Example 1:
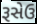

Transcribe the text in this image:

રૂસેઉ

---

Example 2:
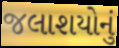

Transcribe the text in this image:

જલાશયોનું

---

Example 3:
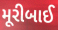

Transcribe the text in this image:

મૂરીબાઈ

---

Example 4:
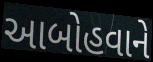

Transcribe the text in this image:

આબોહવાને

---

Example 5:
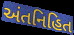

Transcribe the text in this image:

અંતનિહિત